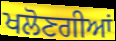
ਖਲੋਣਗੀਆਂ